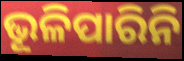
ଭୂଳିପାରିନି